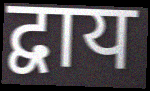
द्वाय